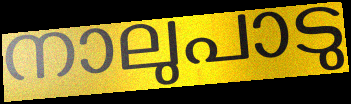
നാലുപാടു